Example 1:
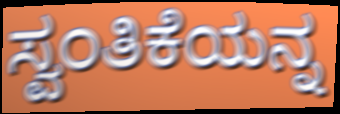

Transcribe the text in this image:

ಸ್ವಂತಿಕೆಯನ್ನ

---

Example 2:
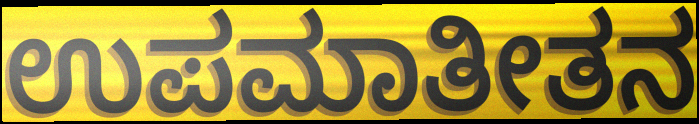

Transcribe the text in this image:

ಉಪಮಾತೀತನ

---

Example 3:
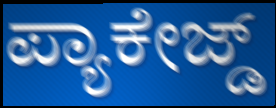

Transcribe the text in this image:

ಪ್ಯಾಕೇಜ್ಡ್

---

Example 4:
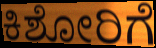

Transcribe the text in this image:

ಕಿಶೋರಿಗೆ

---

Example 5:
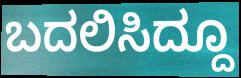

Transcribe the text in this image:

ಬದಲಿಸಿದ್ದೂ